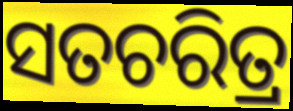
ସତଚରିତ୍ର